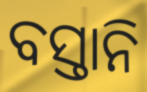
ବସ୍ତାନି